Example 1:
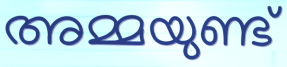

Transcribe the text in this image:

അമ്മയുണ്ട്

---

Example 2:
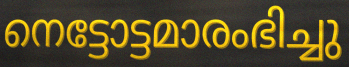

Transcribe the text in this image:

നെട്ടോട്ടമാരംഭിച്ചു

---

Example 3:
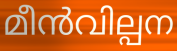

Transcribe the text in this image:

മീൻവില്പന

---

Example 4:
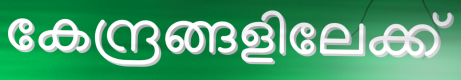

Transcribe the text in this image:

കേന്ദ്രങ്ങളിലേക്ക്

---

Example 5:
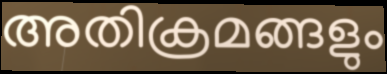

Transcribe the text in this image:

അതിക്രമങ്ങളും